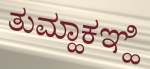
ತುಮ್ಹಾಕಞ್ಹಿ